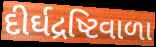
દીર્ઘદ્રષ્ટિવાળા